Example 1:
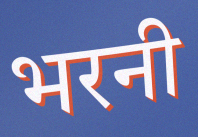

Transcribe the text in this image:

भरनी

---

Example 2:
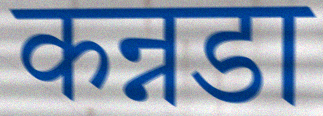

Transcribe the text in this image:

कन्नडा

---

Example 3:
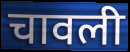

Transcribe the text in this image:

चावली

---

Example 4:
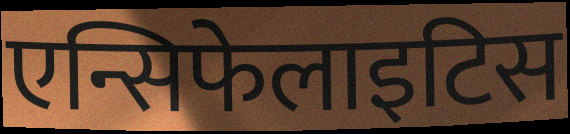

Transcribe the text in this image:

एन्सिफेलाइटिस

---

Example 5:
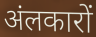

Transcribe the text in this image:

अंलकारों